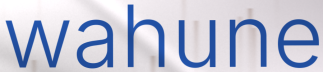
wahune